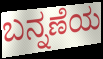
ಬನ್ನಣೆಯ